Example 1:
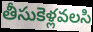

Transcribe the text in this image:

తీసుకెళ్లవలసి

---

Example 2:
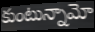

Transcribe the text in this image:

కుంటున్నామో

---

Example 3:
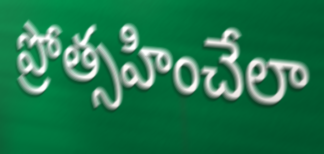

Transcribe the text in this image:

ప్రోత్సహించేలా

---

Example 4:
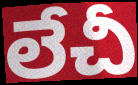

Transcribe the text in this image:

లేచీ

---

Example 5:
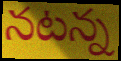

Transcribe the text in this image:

నటన్న